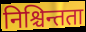
निश्चिन्तता